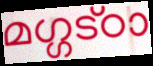
മഗ്ഗട്ഠാ